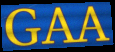
GAA